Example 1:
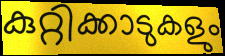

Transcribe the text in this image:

കുറ്റിക്കാടുകളും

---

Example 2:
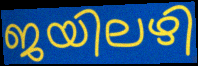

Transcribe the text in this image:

ജയിലഴി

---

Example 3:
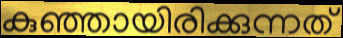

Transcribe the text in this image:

കുഞ്ഞായിരിക്കുന്നത്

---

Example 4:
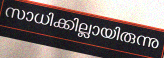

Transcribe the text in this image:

സാധിക്കില്ലായിരുന്നു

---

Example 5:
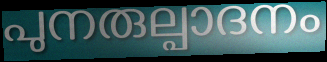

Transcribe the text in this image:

പുനരുല്പാദനം